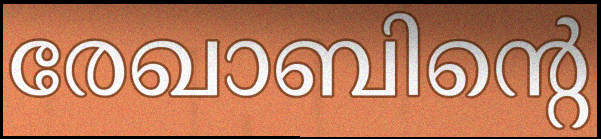
രേഖാബിന്റെ